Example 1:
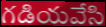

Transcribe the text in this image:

గడియవేసి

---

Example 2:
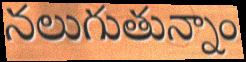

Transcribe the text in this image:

నలుగుతున్నాం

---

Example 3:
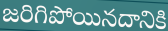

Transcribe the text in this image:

జరిగిపోయినదానికి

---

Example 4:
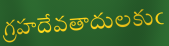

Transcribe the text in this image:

గ్రహదేవతాదులకుఁ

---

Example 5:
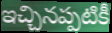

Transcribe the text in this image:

ఇచ్చినప్పటికీ